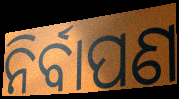
ନିର୍ବାପଣ